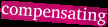
compensating